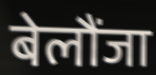
बेलौंजा